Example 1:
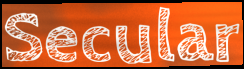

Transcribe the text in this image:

Secular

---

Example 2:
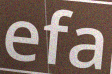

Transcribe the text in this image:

efa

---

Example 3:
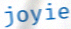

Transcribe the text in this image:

joyie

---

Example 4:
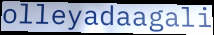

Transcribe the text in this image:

olleyadaagali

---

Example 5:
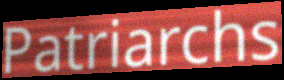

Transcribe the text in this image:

Patriarchs